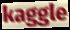
kaggle